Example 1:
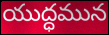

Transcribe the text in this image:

యుద్ధమున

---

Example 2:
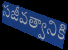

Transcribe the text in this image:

సజీవత్వానికి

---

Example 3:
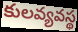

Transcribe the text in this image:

కులవ్యవస్థ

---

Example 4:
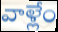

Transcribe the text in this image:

వాళ్లేం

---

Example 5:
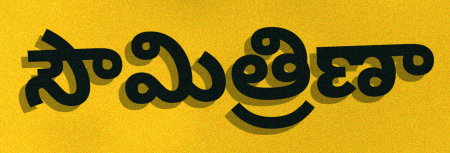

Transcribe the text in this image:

సౌమిత్రిణా